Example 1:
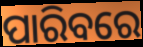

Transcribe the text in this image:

ପାରିବରେ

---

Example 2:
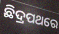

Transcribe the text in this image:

ଛିଦ୍ରପଥରେ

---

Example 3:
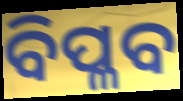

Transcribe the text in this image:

ବିପ୍ଳବ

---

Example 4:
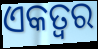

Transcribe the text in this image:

ଏକତ୍ବର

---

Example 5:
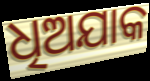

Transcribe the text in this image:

ଧିଅଯାକ